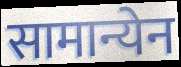
सामान्येन